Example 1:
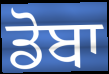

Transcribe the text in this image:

ਡੋਬਾ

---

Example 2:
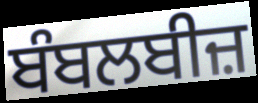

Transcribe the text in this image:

ਬੰਬਲਬੀਜ਼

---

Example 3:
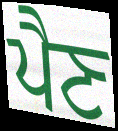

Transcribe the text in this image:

ਪੈਣ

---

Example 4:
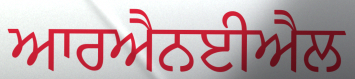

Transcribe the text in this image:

ਆਰਐਨਈਐਲ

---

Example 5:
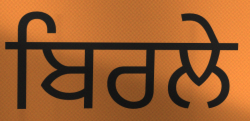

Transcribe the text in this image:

ਬਿਰਲੇ